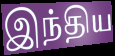
இந்திய